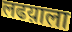
लढय़ाला